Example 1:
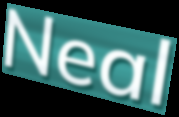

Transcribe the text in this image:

Neal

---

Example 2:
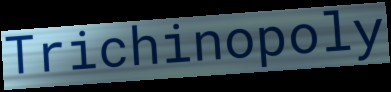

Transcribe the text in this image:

Trichinopoly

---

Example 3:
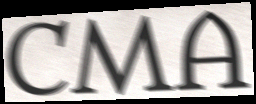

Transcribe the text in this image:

CMA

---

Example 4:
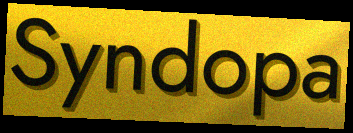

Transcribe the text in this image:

Syndopa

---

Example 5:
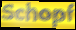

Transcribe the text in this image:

Schopf